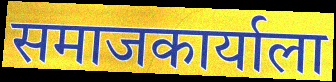
समाजकार्याला